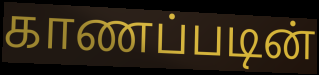
காணப்படின்